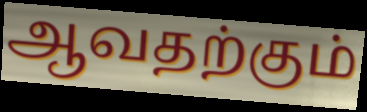
ஆவதற்கும்